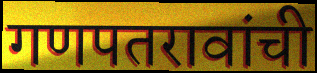
गणपतरावांची